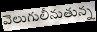
వెలుగులీనుతున్న